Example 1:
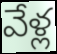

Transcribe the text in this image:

వేళ్ల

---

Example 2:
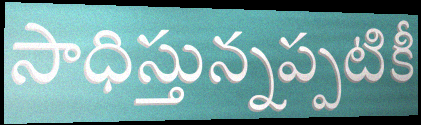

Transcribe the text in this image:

సాధిస్తున్నప్పటికీ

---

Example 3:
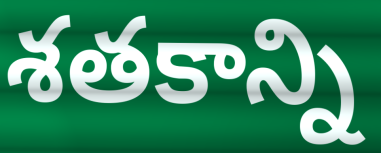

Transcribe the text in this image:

శతకాన్ని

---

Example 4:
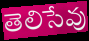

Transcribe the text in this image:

తెలిసేవు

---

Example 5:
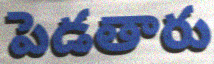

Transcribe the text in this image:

పెడతారు